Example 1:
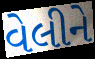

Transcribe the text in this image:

વેલીને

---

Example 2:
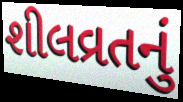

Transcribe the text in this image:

શીલવ્રતનું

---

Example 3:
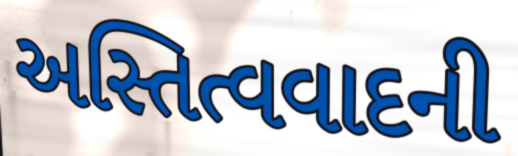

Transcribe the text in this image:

અસ્તિત્વવાદની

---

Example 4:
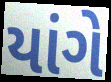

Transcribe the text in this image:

યાંગે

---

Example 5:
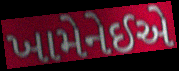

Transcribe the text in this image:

ખામેનેઈએ